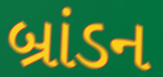
બ્રાંડન